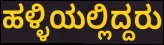
ಹಳ್ಳಿಯಲ್ಲಿದ್ದರು